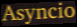
Asyncio